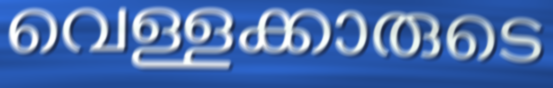
വെള്ളക്കാരുടെ